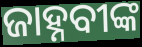
ଜାହ୍ନବୀଙ୍କ